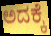
ಅದಕ್ಕೆ